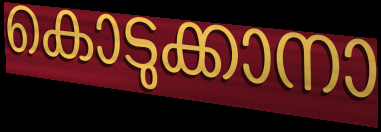
കൊടുക്കാനാ